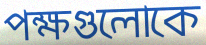
পক্ষগুলোকে